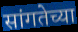
सांगतेच्या